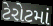
ટેરોટમાં